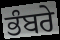
ਭੰਬਰੇ